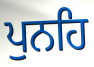
ਪੁਨਹਿ